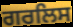
ਗਰਲਿਸ